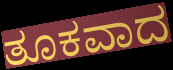
ತೂಕವಾದ